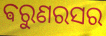
ଵରୁଣରସର